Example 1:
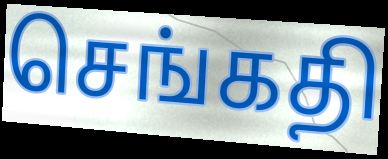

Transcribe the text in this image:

செங்கதி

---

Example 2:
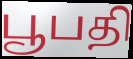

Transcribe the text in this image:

பூபதி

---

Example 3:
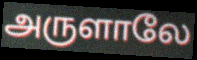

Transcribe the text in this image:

அருளாலே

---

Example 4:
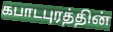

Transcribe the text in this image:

கபாடபுரத்தின்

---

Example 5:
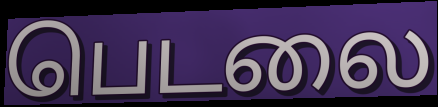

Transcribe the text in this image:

பெடலை